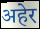
अहेर